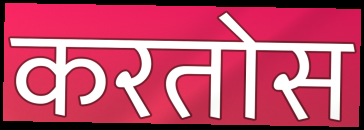
करतोस